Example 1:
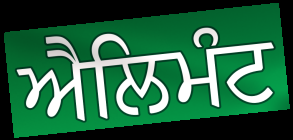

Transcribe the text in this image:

ਐਲਿਮੰਟ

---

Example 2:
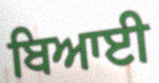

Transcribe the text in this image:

ਬਿਆਈ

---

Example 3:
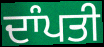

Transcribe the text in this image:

ਦਾੰਪਤੀ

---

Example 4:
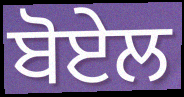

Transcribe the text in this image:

ਬੋਏਲ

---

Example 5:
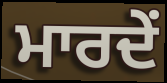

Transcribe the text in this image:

ਮਾਰਦੇਂ